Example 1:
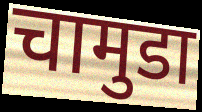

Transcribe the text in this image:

चामुडा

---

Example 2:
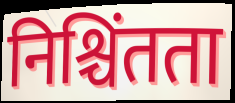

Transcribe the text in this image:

निश्चिंतता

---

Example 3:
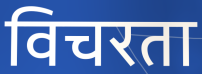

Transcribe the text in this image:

विचरता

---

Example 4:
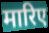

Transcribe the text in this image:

मारिए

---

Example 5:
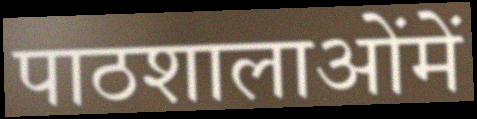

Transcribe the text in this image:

पाठशालाओंमें